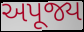
અપૂજ્ય